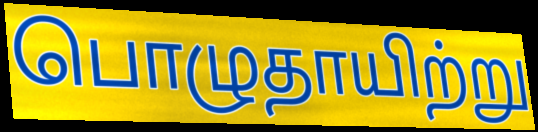
பொழுதாயிற்று